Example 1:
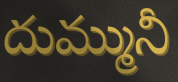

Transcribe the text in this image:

దుమ్మునీ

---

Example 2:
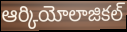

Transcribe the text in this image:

ఆర్కియోలాజికల్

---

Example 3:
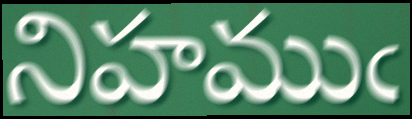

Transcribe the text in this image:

నిహముఁ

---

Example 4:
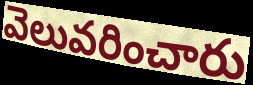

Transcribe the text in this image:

వెలువరించారు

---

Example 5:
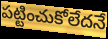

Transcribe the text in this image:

పట్టించుకోలేదనే